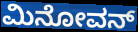
ಮಿನೋವನ್